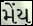
મેંય